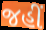
જહીં